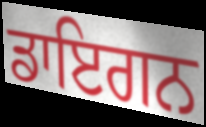
ਡਾਇਗਨ